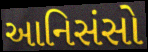
આનિસંસો